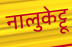
नालुकेट्टू